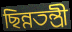
ছিন্নতন্ত্রী